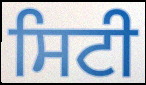
ਸਿਟੀ